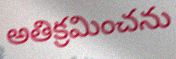
అతిక్రమించను